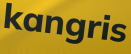
kangris